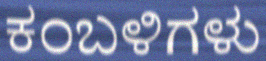
ಕಂಬಳಿಗಳು